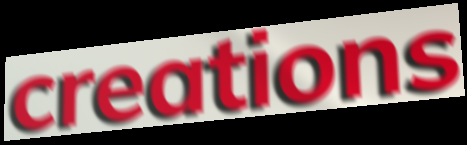
creations